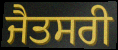
ਜੈਤਸਰੀ